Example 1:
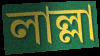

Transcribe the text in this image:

লাল্লা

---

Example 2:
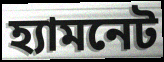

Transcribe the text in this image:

হ্যামনেট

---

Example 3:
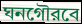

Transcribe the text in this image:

ঘনগৌরবে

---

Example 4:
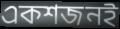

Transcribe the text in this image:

একশজনই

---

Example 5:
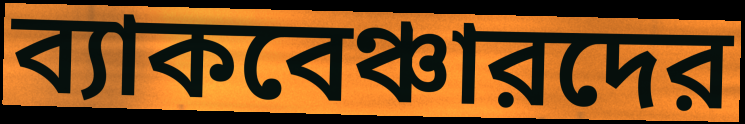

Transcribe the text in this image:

ব্যাকবেঞ্চারদের